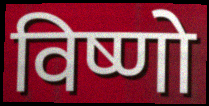
विष्णो